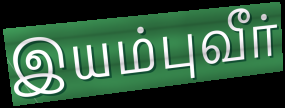
இயம்புவீர்